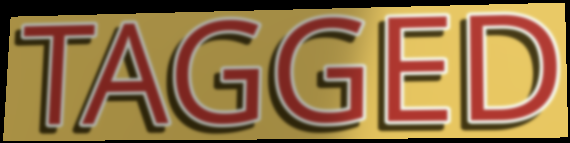
TAGGED